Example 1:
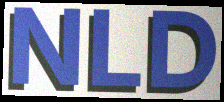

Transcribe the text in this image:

NLD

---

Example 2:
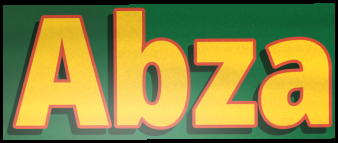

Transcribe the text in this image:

Abza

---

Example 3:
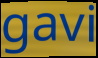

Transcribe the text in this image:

gavi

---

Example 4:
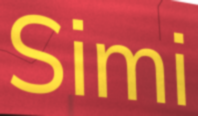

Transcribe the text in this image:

Simi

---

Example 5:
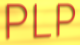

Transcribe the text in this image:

PLP